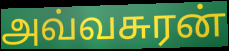
அவ்வசுரன்